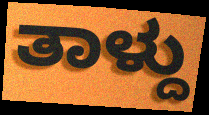
ತಾಳ್ದು